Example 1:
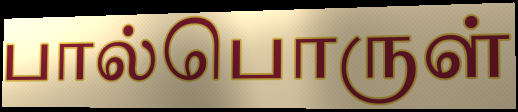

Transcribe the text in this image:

பால்பொருள்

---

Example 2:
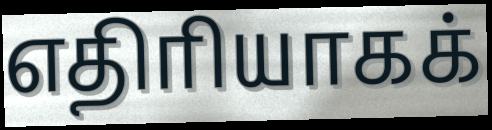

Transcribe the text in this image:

எதிரியாகக்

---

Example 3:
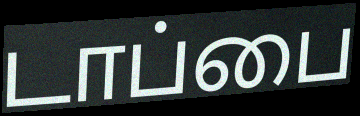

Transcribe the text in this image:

டாப்பை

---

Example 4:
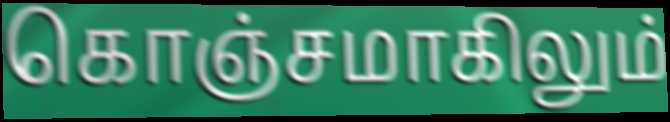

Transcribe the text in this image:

கொஞ்சமாகிலும்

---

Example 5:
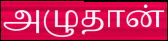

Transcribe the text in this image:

அழுதான்